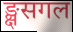
ङ्क्षसगल